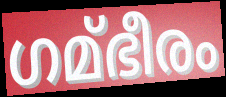
ഗമ്ഭീരം